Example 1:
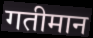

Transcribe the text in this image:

गतीमान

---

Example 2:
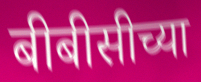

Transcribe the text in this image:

बीबीसीच्या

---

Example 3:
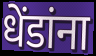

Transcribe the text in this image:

धेंडांना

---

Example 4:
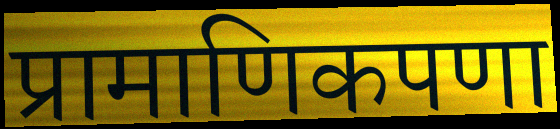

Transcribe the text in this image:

प्रामाणिकपणा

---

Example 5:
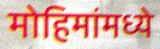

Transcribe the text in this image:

मोहिमांमध्ये